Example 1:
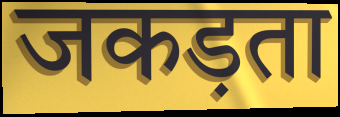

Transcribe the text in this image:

जकड़ता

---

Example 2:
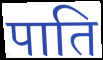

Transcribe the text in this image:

पाति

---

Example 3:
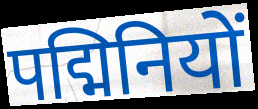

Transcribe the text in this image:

पद्मिनियों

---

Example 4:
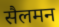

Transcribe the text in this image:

सैलमन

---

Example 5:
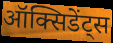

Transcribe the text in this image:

ऑक्सिडेंट्स